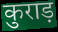
कुराड़